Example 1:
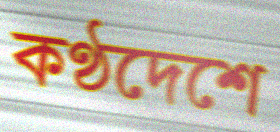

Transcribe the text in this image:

কণ্ঠদেশে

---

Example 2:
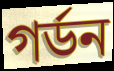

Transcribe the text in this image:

গর্ডন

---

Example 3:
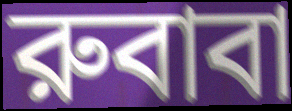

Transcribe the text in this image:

রুবাবা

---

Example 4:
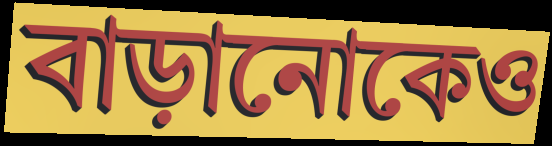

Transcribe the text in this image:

বাড়ানোকেও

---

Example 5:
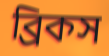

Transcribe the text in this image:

ব্রিকস